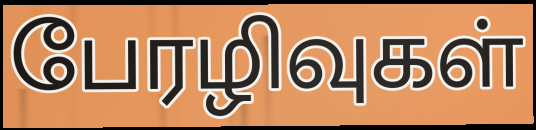
பேரழிவுகள்